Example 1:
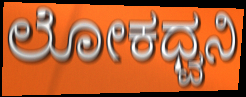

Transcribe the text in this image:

ಲೋಕಧ್ವನಿ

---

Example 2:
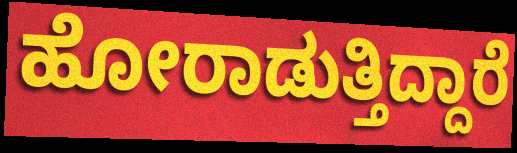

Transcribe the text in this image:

ಹೋರಾಡುತ್ತಿದ್ದಾರೆ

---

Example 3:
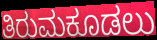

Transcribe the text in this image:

ತಿರುಮಕೂಡಲು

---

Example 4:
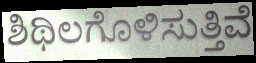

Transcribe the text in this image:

ಶಿಥಿಲಗೊಳಿಸುತ್ತಿವೆ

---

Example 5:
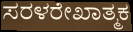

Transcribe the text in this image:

ಸರಳರೇಖಾತ್ಮಕ